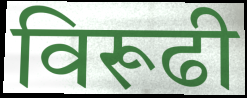
विरूढी